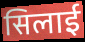
सिलाई